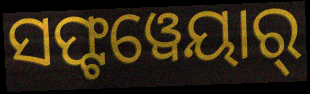
ସଫ୍ଟୱେୟାର୍